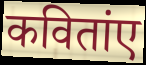
कवितांए